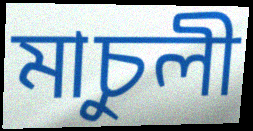
মাচুলী